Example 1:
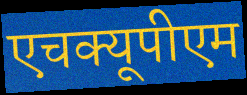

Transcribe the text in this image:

एचक्यूपीएम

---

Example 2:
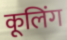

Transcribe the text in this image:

कूलिंग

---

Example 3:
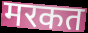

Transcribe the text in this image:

मरकत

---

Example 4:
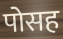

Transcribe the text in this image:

पोसह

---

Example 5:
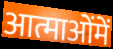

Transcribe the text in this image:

आत्माओंमें